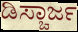
ಡಿಸ್ಚಾರ್ಜ